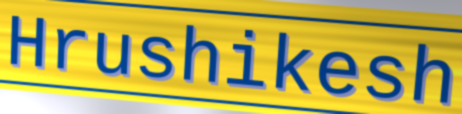
Hrushikesh